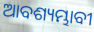
ଆବଶ୍ୟମ୍ଭାବୀ